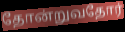
தோன்றுவதோர்